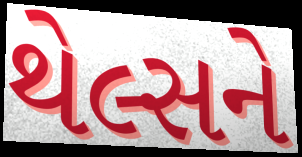
થેલ્સને